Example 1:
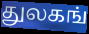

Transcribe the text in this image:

துலகங்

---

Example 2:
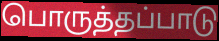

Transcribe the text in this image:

பொருத்தப்பாடு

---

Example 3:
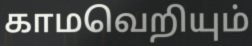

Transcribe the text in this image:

காமவெறியும்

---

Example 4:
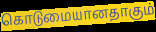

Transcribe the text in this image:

கொடுமையானதாகும்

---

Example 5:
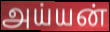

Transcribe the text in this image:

அய்யன்